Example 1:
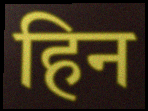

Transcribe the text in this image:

हिन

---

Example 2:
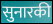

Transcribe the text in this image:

सुनारकी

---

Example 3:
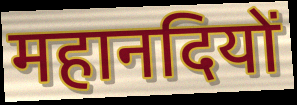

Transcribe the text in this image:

महानदियों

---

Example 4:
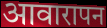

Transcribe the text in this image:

आवारापन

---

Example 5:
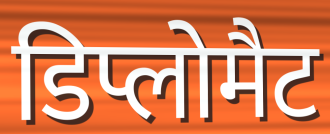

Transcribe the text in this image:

डिप्लोमैट